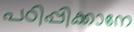
പഠിപ്പിക്കാനേ